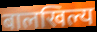
बालखिल्य